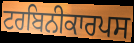
ਟਰਬਿਨੀਕਾਰਪਸ